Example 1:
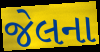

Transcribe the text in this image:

જેલના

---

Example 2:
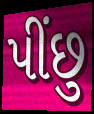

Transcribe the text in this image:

પીંછુ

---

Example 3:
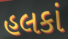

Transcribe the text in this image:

હલકાં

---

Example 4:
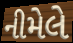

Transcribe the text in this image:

નીમેલે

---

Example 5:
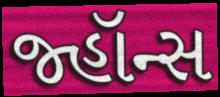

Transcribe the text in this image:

જ્હૉન્સ